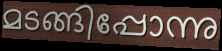
മടങ്ങിപ്പോന്നു